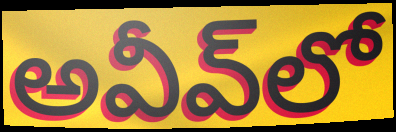
అవీవ్‌లో